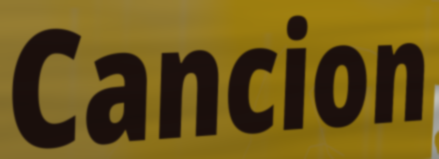
Cancion